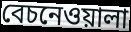
বেচনেওয়ালা